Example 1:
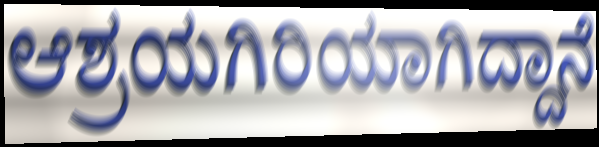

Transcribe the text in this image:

ಆಶ್ರಯಗಿರಿಯಾಗಿದ್ದಾನೆ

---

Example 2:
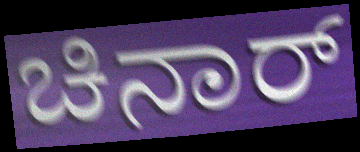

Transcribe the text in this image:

ಚಿನಾರ್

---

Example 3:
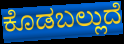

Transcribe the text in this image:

ಕೊಡಬಲ್ಲುದೆ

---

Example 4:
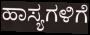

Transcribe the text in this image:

ಹಾಸ್ಯಗಳಿಗೆ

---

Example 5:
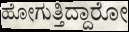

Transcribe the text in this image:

ಹೋಗುತ್ತಿದ್ದಾರೋ